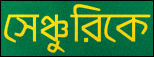
সেঞ্চুরিকে